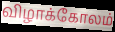
விழாக்கோலம்